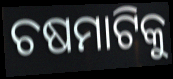
ଚଷମାଟିକୁ